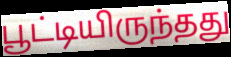
பூட்டியிருந்தது